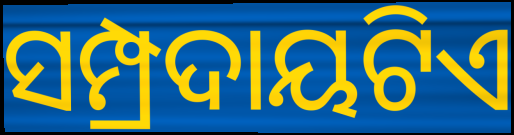
ସମ୍ପ୍ରଦାୟଟିଏ